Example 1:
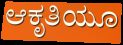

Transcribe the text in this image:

ಆಕೃತಿಯೂ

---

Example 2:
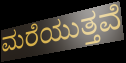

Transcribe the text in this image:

ಮರೆಯುತ್ತವೆ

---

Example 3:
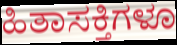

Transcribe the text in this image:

ಹಿತಾಸಕ್ತಿಗಳೂ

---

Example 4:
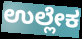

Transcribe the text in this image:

ಉಲ್ಲೇಕ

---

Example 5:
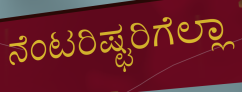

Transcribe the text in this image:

ನೆಂಟರಿಷ್ಟರಿಗೆಲ್ಲಾ